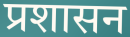
प्रशासन